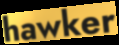
hawker